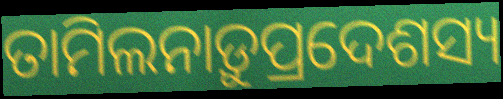
ତାମିଲନାଡ଼ୁପ୍ରଦେଶସ୍ୟ